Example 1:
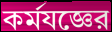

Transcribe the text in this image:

কর্মযজ্ঞের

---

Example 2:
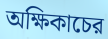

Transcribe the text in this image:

অক্ষিকাচের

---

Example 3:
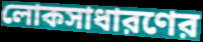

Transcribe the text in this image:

লোকসাধারণের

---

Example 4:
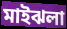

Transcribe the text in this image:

মাইঝলা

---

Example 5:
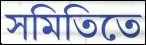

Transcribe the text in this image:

সমিতিতে